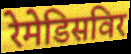
रेमेडिसविर